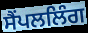
ਸੈਂਪਲਲਿੰਗ